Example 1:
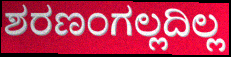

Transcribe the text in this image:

ಶರಣಂಗಲ್ಲದಿಲ್ಲ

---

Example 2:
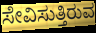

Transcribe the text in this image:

ಸೇವಿಸುತ್ತಿರುವ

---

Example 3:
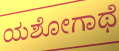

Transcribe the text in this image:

ಯಶೋಗಾಥೆ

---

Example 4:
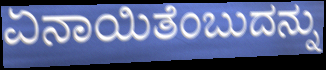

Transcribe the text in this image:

ಏನಾಯಿತೆಂಬುದನ್ನು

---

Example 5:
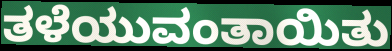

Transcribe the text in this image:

ತಳೆಯುವಂತಾಯಿತು